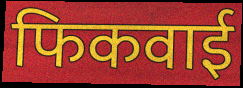
फिकवाई